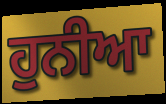
ਹੁਨੀਆ